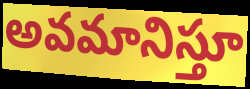
అవమానిస్తూ